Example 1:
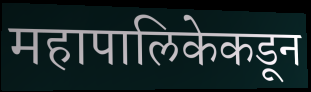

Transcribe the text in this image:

महापालिकेकडून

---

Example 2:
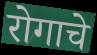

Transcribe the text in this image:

रोगाचे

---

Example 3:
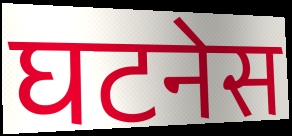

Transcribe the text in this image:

घटनेस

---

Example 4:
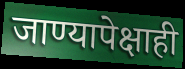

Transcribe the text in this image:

जाण्यापेक्षाही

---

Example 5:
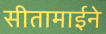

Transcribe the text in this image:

सीतामाईने